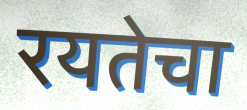
रयतेचा